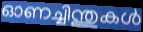
ഓണച്ചിന്തുകൾ